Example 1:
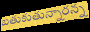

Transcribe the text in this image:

బతుకుతున్నారన్న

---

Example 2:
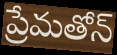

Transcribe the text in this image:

ప్రేమతోన్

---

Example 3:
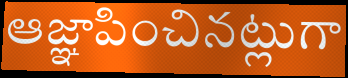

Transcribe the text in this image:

ఆజ్ఞాపించినట్లుగా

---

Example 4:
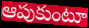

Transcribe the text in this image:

ఆపుకుంటూ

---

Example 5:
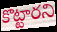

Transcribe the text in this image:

కొట్టారని